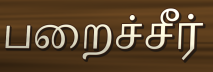
பறைச்சீர்